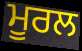
ਮੂਰਲ